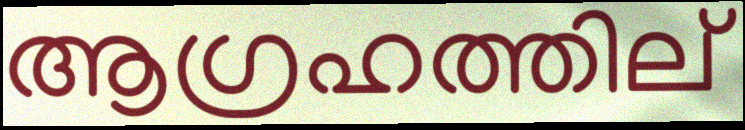
ആഗ്രഹത്തില്